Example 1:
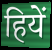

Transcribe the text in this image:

हियें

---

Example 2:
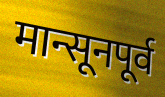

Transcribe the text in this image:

मान्सूनपूर्व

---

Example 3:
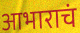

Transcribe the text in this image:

आभाराचं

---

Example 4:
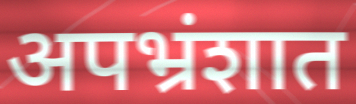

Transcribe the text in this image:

अपभ्रंशात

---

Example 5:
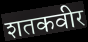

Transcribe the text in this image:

शतकवीर